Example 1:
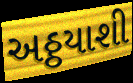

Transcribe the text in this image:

અઠ્ઠયાશી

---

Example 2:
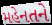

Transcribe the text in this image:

મહેનતને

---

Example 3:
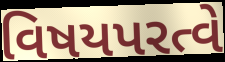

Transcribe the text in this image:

વિષયપરત્વે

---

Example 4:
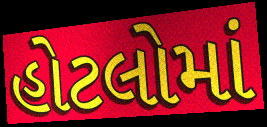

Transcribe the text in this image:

હોટલોમાં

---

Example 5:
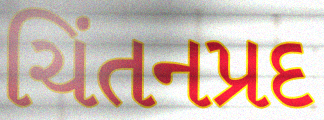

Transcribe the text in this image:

ચિંતનપ્રદ